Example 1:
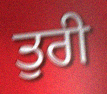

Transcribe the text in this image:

ਤੁਰੀ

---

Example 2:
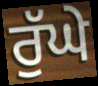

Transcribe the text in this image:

ਰੁੱਘੇ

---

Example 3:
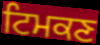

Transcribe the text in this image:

ਟਿਮਕਣ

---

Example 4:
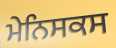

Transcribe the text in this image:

ਮੇਨਿਸਕਸ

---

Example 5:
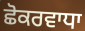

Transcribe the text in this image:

ਛੋਕਰਵਾਧਾ